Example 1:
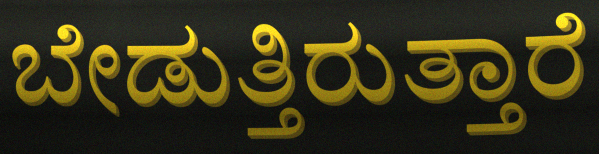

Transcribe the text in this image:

ಬೇಡುತ್ತಿರುತ್ತಾರೆ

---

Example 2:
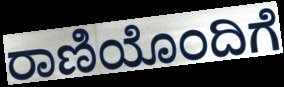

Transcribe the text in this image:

ರಾಣಿಯೊಂದಿಗೆ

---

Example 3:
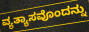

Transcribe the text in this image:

ವ್ಯತ್ಯಾಸವೊಂದನ್ನು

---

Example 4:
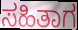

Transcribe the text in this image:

ಸಹಿತಾಗ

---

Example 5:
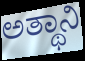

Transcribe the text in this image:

ಅತ್ಥಾನಿ